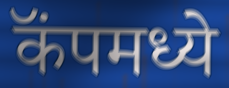
कॅंपमध्ये